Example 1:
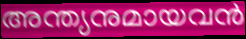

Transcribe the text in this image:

അന്ത്യനുമായവൻ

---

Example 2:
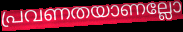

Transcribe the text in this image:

പ്രവണതയാണല്ലോ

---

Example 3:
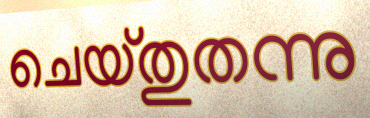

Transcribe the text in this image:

ചെയ്തുതന്നു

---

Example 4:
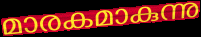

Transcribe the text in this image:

മാരകമാകുന്നു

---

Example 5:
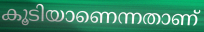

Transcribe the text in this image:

കൂടിയാണെന്നതാണ്